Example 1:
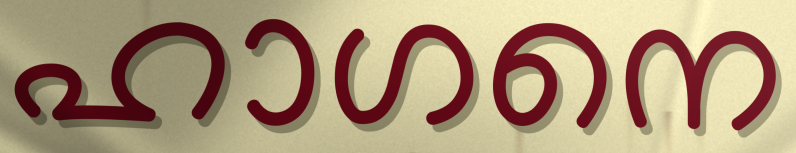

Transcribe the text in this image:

ഹാഗനെ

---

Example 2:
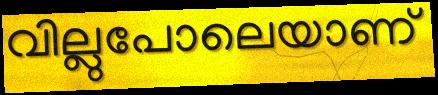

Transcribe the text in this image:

വില്ലുപോലെയാണ്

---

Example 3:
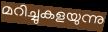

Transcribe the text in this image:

മറിച്ചുകളയുന്നു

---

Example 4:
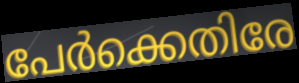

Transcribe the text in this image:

പേർക്കെതിരേ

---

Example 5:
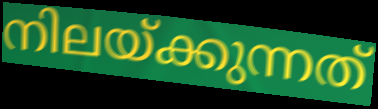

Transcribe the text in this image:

നിലയ്ക്കുന്നത്